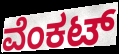
ವೆಂಕಟ್